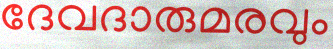
ദേവദാരുമരവും